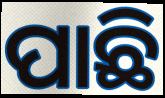
ପାଛି